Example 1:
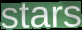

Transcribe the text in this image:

stars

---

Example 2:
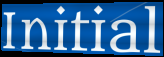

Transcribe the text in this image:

Initial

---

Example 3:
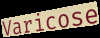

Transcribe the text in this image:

Varicose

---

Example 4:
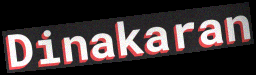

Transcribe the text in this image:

Dinakaran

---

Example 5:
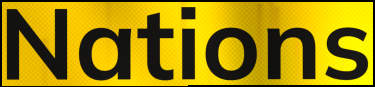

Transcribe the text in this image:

Nations